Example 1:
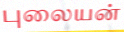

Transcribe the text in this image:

புலையன்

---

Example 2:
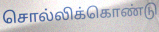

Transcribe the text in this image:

சொல்லிக்கொண்டு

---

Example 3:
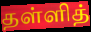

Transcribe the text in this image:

தள்ளித்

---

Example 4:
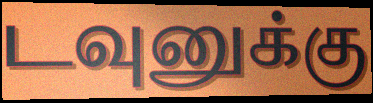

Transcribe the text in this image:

டவுனுக்கு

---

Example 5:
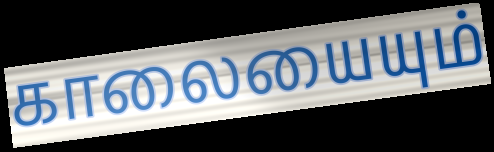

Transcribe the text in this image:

காலையையும்